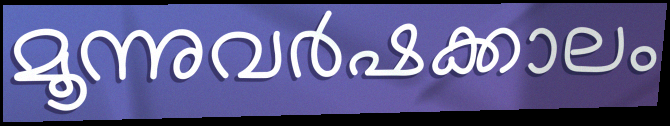
മൂന്നുവർഷക്കാലം